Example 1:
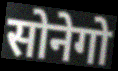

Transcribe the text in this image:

सोनेगो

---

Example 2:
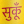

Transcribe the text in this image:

सुकूँ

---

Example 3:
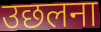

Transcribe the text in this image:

उछलना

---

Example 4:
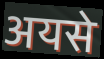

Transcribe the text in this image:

अयसे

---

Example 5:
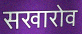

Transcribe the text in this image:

सखारोव